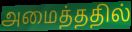
அமைத்ததில்